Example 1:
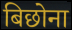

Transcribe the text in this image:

बिछोना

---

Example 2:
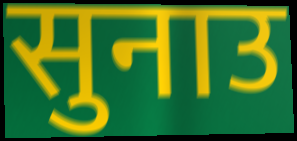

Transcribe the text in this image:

सुनाउ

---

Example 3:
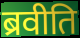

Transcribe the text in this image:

ब्रवीति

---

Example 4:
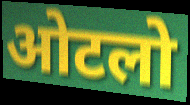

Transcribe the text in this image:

ओटलो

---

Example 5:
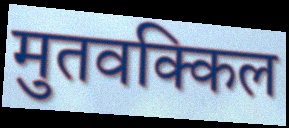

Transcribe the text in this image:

मुतवक्किल